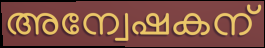
അന്വേഷകന്